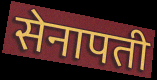
सेनापती